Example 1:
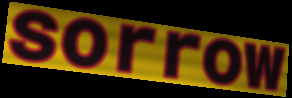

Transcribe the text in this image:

sorrow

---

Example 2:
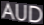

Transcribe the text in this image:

AUD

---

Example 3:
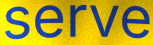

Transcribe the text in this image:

serve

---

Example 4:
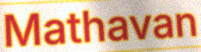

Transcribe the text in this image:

Mathavan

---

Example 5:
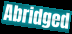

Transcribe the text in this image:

Abridged